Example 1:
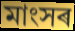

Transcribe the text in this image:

মাংসৰ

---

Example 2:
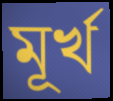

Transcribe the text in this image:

মূৰ্খ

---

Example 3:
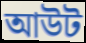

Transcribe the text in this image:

আউট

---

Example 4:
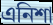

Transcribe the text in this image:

এনিশা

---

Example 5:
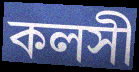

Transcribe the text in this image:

কলসী